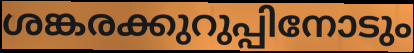
ശങ്കരക്കുറുപ്പിനോടും